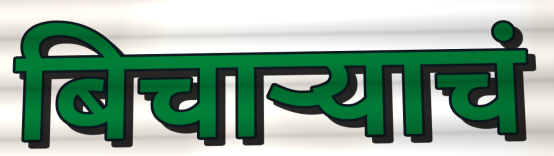
बिचाऱ्याचं